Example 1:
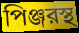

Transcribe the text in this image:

পিঞ্জরস্থ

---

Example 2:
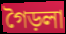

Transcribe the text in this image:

গৈড়লা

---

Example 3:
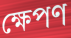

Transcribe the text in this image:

ক্ষেপণ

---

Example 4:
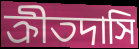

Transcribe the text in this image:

ক্রীতদাসি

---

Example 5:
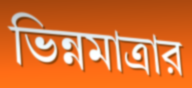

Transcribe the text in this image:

ভিন্নমাত্রার